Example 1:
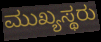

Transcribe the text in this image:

ಮುಖ್ಯಸ್ಥರು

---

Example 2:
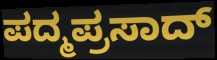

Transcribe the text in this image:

ಪದ್ಮಪ್ರಸಾದ್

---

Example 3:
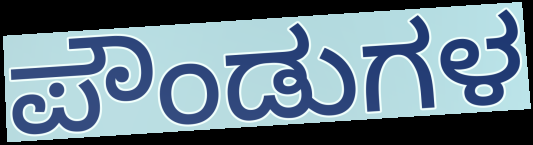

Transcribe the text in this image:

ಪೌಂಡುಗಳ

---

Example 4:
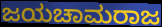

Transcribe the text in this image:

ಜಯಚಾಮರಾಜ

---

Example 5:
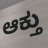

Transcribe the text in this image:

ಆಕ್ತು